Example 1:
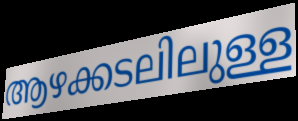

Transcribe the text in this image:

ആഴക്കടലിലുള്ള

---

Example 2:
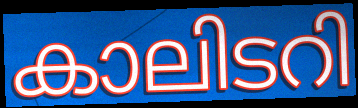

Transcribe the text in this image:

കാലിടറി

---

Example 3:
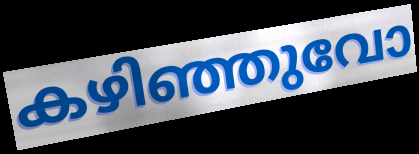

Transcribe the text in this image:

കഴിഞ്ഞുവോ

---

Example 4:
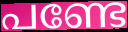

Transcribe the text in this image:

പണ്ടേ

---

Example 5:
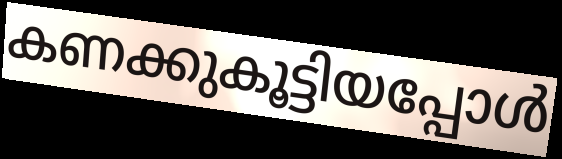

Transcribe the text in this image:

കണക്കുകൂട്ടിയപ്പോൾ